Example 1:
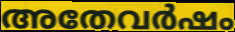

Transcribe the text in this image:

അതേവർഷം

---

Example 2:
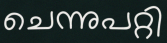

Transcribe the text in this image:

ചെന്നുപറ്റി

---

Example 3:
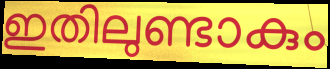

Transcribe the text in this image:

ഇതിലുണ്ടാകും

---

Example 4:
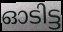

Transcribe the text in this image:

ഓടിട്ട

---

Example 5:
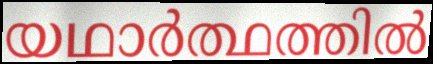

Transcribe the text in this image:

യഥാർത്ഥത്തിൽ